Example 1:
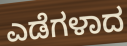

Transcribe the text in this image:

ಎಡೆಗಳಾದ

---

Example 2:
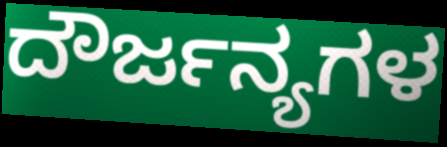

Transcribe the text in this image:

ದೌರ್ಜನ್ಯಗಳ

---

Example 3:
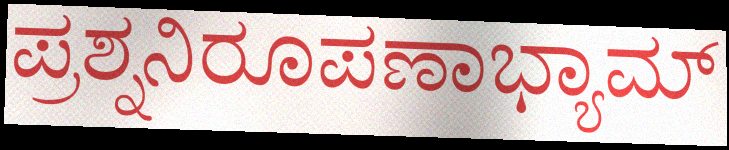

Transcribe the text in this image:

ಪ್ರಶ್ನನಿರೂಪಣಾಭ್ಯಾಮ್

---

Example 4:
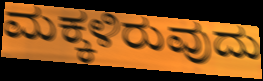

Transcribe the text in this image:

ಮಕ್ಕಳಿರುವುದು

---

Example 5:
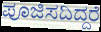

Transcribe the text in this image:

ಪೂಜಿಸದಿದ್ದರೆ